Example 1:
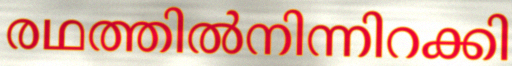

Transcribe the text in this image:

രഥത്തിൽനിന്നിറക്കി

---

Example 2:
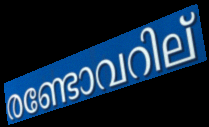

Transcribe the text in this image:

രണ്ടോവറില്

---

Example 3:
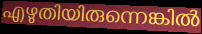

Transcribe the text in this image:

എഴുതിയിരുന്നെങ്കിൽ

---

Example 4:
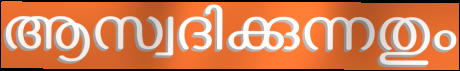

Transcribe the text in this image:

ആസ്വദിക്കുന്നതും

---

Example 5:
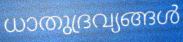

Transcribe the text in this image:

ധാതുദ്രവ്യങ്ങൾ